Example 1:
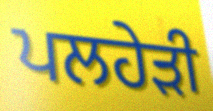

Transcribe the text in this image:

ਪਲਹੇੜੀ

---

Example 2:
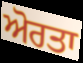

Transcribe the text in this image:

ਅੋਰਤਾ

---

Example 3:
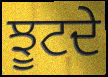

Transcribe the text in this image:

ਝੂਟਦੇ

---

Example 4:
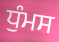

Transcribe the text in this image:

ਧੁੰਮਸ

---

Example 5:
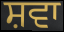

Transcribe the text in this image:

ਸ਼ਵਾ